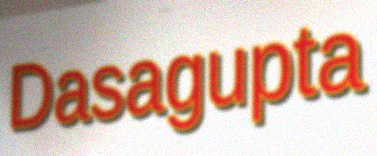
Dasagupta